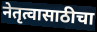
नेतृत्वासाठीचा